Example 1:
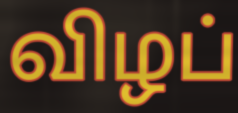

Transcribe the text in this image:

விழப்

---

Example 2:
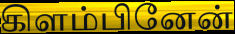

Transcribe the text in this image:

கிளம்பினேன்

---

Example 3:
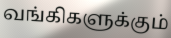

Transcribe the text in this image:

வங்கிகளுக்கும்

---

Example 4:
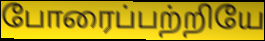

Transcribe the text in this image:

போரைப்பற்றியே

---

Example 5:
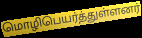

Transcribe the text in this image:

மொழிபெயர்த்துள்ளனர்